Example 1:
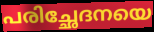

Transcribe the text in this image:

പരിച്ഛേദനയെ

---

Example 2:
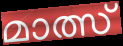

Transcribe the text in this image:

മാത്സ്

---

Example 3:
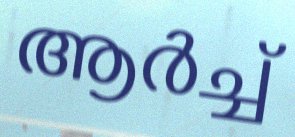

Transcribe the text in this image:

ആർച്ച്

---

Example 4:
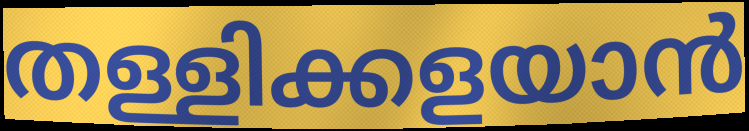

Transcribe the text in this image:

തള്ളിക്കളയാൻ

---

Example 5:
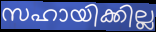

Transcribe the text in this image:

സഹായിക്കില്ല